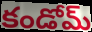
కండోమ్